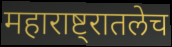
महाराष्ट्रातलेच